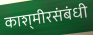
काश्मीरसंबंधी